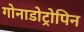
गोनाडोट्रोपिन